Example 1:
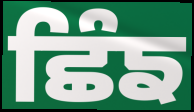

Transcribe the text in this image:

ਛਿੰਙ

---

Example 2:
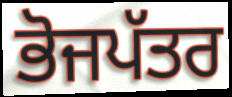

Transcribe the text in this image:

ਭੋਜਪੱਤਰ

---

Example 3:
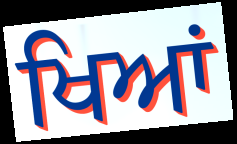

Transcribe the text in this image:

ਖਿਆਂ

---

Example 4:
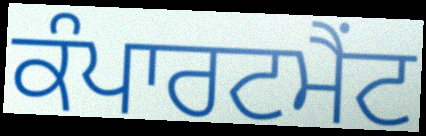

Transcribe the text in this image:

ਕੰਪਾਰਟਮੈਂਟ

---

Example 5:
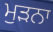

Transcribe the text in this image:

ਮੁਡ਼ਨਾ